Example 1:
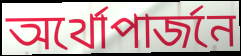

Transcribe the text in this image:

অর্থোপার্জনে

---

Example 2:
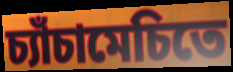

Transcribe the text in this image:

চ্যাঁচামেচিতে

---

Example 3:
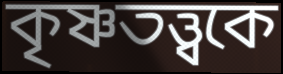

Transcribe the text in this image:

কৃষ্ণতত্ত্বকে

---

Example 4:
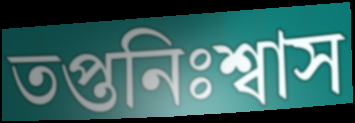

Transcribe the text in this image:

তপ্তনিঃশ্বাস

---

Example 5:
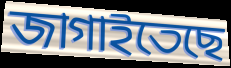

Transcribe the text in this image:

জাগাইতেছে